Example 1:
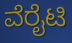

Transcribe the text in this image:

ವೆರೈಟಿ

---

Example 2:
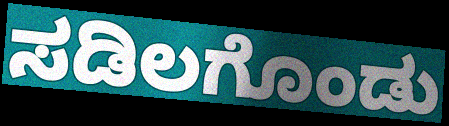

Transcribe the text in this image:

ಸಡಿಲಗೊಂಡು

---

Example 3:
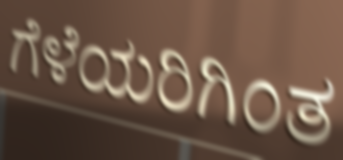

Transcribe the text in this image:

ಗೆಳೆಯರಿಗಿಂತ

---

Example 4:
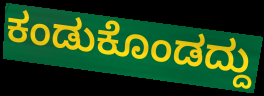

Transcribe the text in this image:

ಕಂಡುಕೊಂಡದ್ದು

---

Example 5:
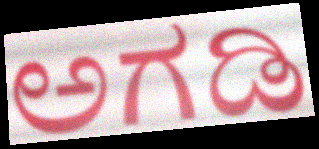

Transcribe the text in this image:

ಅಗಡಿ